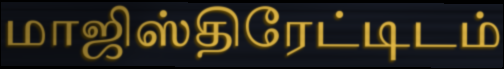
மாஜிஸ்திரேட்டிடம்